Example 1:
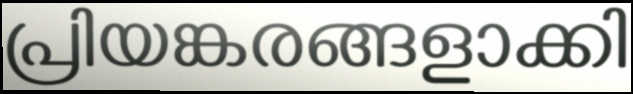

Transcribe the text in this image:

പ്രിയങ്കരങ്ങളാക്കി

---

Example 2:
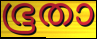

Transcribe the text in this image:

ഭൂതാ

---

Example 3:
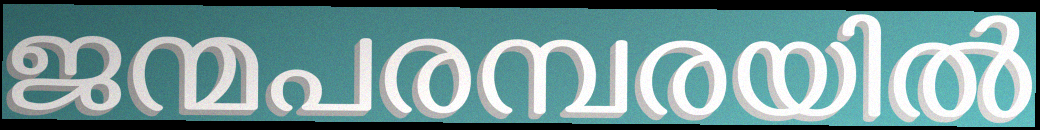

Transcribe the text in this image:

ജന്മപരമ്പരയിൽ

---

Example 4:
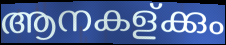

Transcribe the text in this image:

ആനകള്ക്കും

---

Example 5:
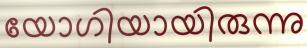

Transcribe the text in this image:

യോഗിയായിരുന്നു